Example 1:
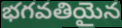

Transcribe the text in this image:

భగవతియైన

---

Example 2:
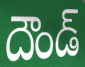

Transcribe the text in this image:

దౌండ్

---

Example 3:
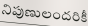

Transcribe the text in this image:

నిపుణులందరికీ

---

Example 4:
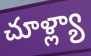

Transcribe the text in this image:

చూళ్ల్యా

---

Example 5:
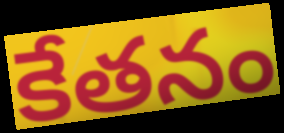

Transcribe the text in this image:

కేతనం